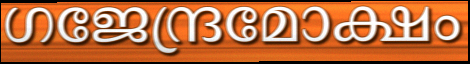
ഗജേന്ദ്രമോക്ഷം